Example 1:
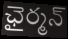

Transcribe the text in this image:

ఛైర్మన్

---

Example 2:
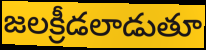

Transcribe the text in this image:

జలక్రీడలాడుతూ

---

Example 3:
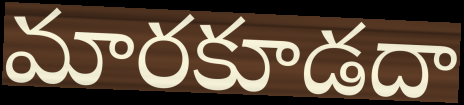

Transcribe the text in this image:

మారకూడదా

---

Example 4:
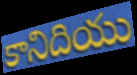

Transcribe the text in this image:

కానిదియు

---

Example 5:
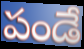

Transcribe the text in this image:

పండే